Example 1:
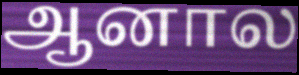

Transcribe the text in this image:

ஆனால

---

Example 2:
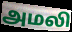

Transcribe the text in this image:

அமலி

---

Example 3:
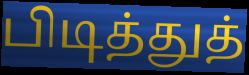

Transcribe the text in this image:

பிடித்துத்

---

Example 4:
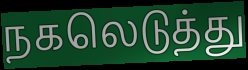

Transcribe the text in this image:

நகலெடுத்து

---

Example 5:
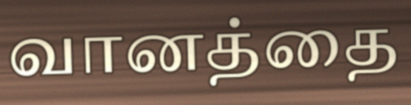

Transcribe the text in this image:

வானத்தை